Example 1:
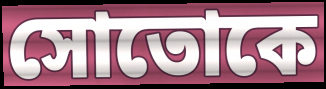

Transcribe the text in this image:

সোতোকে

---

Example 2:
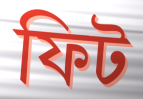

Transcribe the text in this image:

ফিট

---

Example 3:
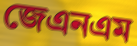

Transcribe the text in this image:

জেএনএম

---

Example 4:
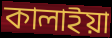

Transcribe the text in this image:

কালাইয়া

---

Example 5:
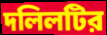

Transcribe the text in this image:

দলিলটির